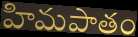
హిమపాతం